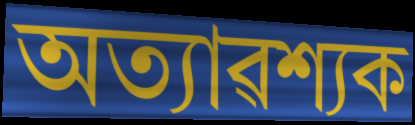
অত্যাৱশ্যক